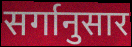
सर्गानुसार